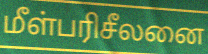
மீள்பரிசீலனை